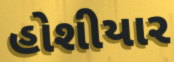
હોશીયાર